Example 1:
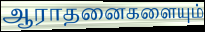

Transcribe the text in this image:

ஆராதனைகளையும்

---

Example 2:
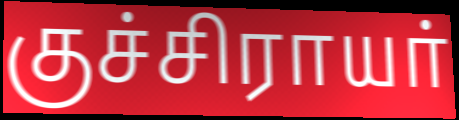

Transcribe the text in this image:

குச்சிராயர்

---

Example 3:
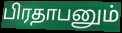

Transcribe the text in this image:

பிரதாபனும்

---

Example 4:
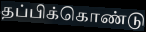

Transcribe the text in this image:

தப்பிக்கொண்டு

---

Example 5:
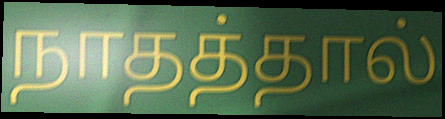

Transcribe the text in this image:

நாதத்தால்